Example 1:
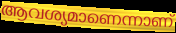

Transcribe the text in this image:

ആവശ്യമാണെന്നാണ്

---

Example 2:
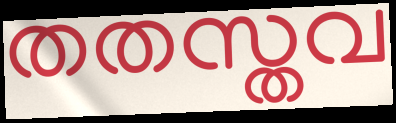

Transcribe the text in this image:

തതസ്തവ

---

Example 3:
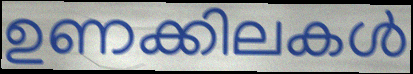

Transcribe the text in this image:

ഉണക്കിലകൾ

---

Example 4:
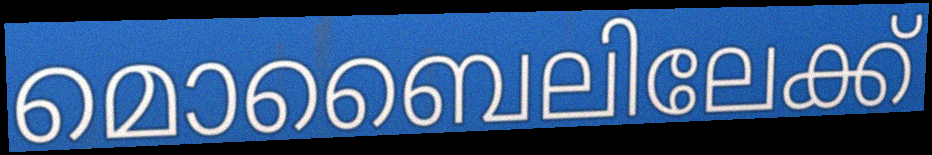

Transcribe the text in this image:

മൊബൈലിലേക്ക്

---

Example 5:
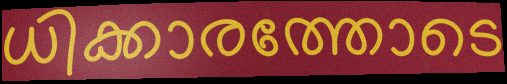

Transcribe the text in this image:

ധിക്കാരത്തോടെ